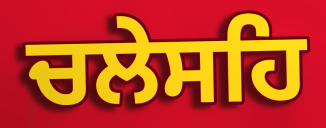
ਚਲੇਸਹਿ